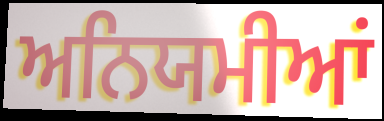
ਅਨਿਯਮੀਆਂ